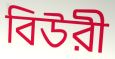
বিউরী